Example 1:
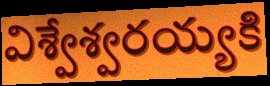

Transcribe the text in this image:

విశ్వేశ్వరయ్యకి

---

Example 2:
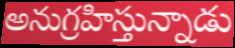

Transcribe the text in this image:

అనుగ్రహిస్తున్నాడు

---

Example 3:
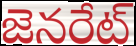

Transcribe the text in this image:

జెనరేట్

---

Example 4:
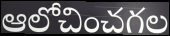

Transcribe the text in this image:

ఆలోచించగల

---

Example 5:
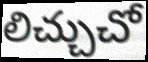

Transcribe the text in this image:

లిచ్చుచో